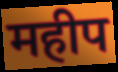
महीप